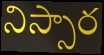
నిస్సార